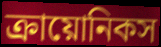
ক্রায়োনিকস